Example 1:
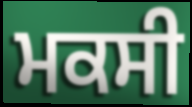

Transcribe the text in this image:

ਮਕਸੀ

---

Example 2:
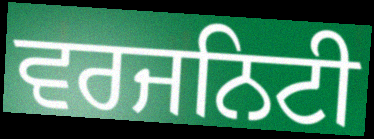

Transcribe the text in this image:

ਵਰਜਨਿਟੀ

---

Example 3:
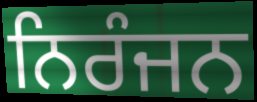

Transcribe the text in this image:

ਨਿਰੰਜਨ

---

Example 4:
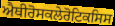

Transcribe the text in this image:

ਐਥੀਰੋਸਕਲੇਰੋਟਿਕਸਿਸ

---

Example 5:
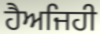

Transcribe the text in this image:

ਹੈਅਜਿਹੀ